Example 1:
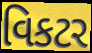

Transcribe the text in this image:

વિકટર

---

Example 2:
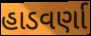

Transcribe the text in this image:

હાડવર્ણા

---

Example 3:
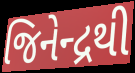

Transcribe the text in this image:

જિનેન્દ્રથી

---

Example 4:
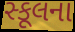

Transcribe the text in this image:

સ્કૂલના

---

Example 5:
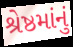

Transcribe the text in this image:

શ્રેષ્ઠમાંનું